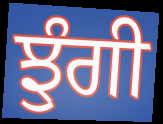
ਝੁੰਗੀ